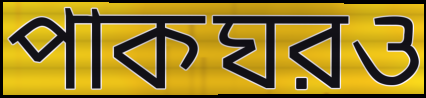
পাকঘরও